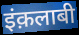
इंक़लाबी